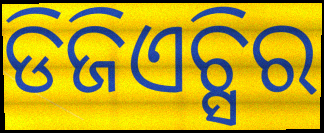
ଡିଜିଏଚ୍ସିର